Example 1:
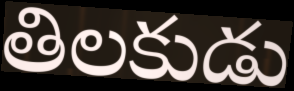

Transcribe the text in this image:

తిలకుడు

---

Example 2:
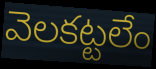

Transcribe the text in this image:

వెలకట్టలేం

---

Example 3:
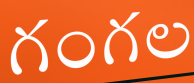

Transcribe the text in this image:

గంగల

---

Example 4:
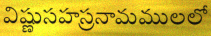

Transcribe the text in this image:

విష్ణుసహస్రనామములలో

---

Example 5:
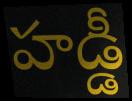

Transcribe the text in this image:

హడ్డీ